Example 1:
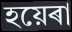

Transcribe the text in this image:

হয়েৰা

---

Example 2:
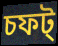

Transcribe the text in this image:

চফট্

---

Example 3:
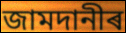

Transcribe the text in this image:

জামদানীৰ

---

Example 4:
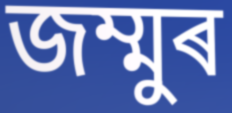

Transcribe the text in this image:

জম্মুৰ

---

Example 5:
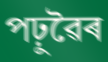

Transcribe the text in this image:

পঢ়ুৱৈৰ